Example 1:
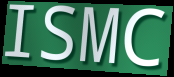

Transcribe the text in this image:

ISMC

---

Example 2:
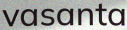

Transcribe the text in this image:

vasanta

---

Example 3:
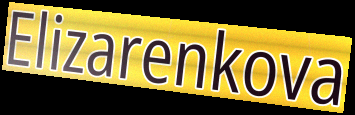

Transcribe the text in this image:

Elizarenkova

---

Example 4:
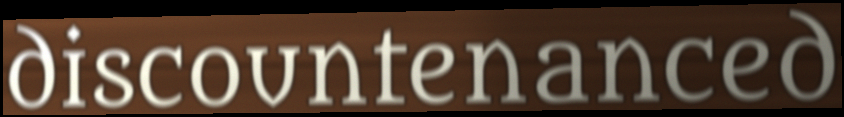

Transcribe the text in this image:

discountenanced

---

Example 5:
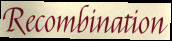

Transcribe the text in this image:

Recombination